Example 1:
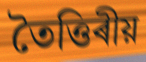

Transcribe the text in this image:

তৈত্তিৰীয়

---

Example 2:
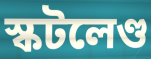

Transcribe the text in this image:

স্কটলেণ্ড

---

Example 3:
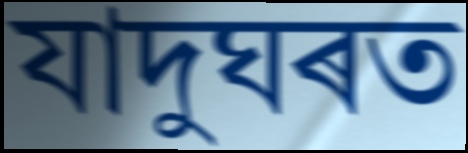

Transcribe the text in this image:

যাদুঘৰত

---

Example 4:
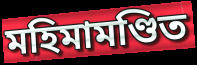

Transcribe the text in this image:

মহিমামণ্ডিত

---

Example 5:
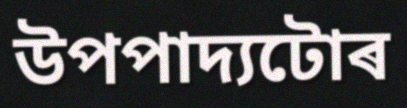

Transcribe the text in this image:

উপপাদ্যটোৰ